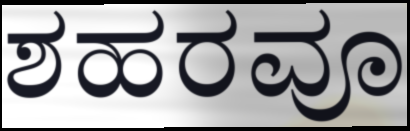
ಶಹರವೂ